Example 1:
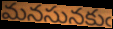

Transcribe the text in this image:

మనసునకుఁ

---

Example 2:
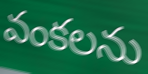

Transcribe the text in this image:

వంకలను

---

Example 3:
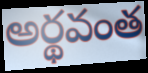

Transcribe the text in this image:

అర్థవంత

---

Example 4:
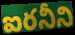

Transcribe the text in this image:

ఐరనీని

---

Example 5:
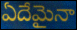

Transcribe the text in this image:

ఏదేమైనా